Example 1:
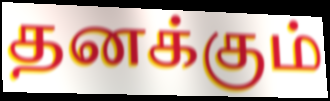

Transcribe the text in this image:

தனக்கும்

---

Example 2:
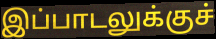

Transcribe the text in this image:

இப்பாடலுக்குச்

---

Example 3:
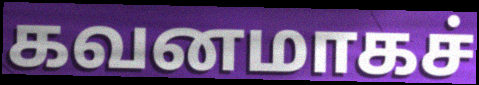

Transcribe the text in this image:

கவனமாகச்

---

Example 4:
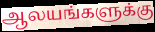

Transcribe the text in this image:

ஆலயங்களுக்கு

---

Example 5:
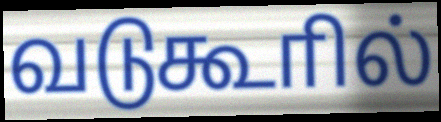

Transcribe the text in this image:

வடுகூரில்